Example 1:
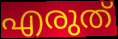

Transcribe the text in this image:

എരുത്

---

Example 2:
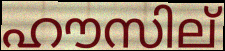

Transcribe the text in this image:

ഹൗസില്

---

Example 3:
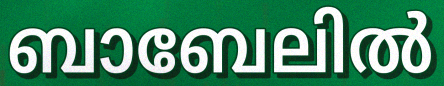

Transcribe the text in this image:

ബാബേലിൽ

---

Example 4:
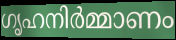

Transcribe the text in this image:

ഗൃഹനിർമ്മാണം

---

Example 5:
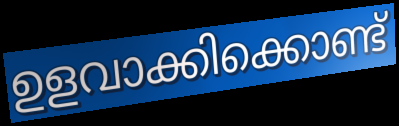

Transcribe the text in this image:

ഉളവാക്കിക്കൊണ്ട്